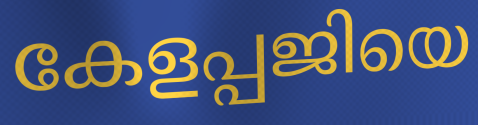
കേളപ്പജിയെ